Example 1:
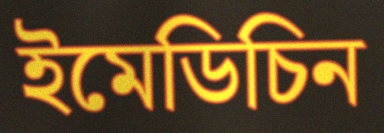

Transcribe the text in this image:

ইমেডিচিন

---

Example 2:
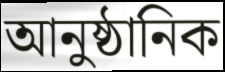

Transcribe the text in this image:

আনুষ্ঠানিক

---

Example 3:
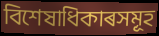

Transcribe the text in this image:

বিশেষাধিকাৰসমূহ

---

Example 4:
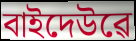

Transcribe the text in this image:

বাইদেউৱে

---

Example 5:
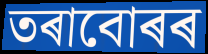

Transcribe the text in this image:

তৰাবোৰৰ